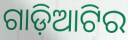
ଗାଡ଼ିଆଟିର